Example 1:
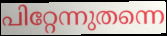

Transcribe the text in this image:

പിറ്റേന്നുതന്നെ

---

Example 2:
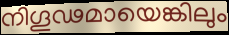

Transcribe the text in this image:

നിഗൂഢമായെങ്കിലും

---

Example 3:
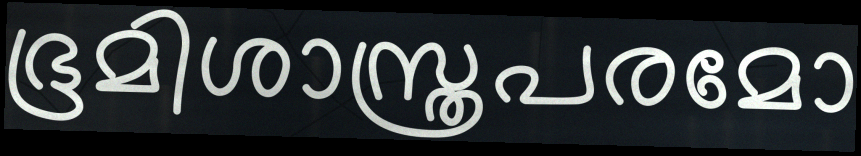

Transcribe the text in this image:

ഭൂമിശാസ്ത്രപരമോ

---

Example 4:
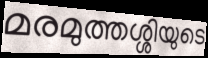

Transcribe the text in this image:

മരമുത്തശ്ശിയുടെ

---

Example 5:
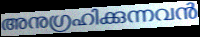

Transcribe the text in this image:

അനുഗ്രഹിക്കുന്നവൻ